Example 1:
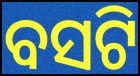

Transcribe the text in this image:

ବସଟି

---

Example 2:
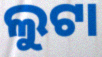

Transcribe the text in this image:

ଲୁଟା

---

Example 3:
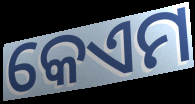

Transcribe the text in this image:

କେଏମ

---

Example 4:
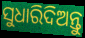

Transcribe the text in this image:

ସୁଧାରିଦିଅନ୍ତୁ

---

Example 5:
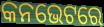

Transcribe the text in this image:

କନଭେଟରେ